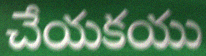
చేయకయు